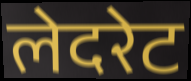
लेदरेट